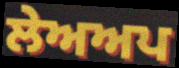
ਲੇਅਅਪ